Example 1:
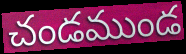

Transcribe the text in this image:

చండముండ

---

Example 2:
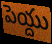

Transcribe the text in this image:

పెయ్దు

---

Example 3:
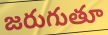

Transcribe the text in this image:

జరుగుతూ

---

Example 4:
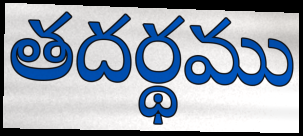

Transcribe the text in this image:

తదర్థము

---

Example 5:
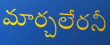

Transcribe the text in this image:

మార్చలేరనీ